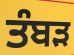
ਤੰਬੜ